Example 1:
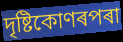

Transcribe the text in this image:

দৃষ্টিকোণৰপৰা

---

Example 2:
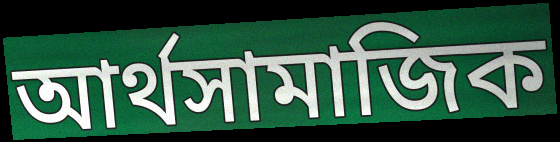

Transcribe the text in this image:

আৰ্থসামাজিক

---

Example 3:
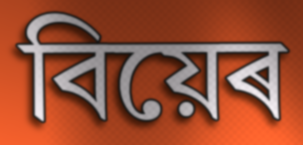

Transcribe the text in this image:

বিয়েৰ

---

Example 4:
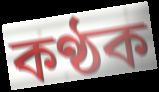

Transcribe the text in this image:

কণ্ঠক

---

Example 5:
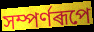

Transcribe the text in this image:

সম্পৰ্ণৰূপে